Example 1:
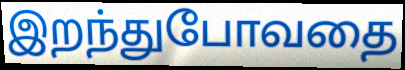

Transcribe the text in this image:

இறந்துபோவதை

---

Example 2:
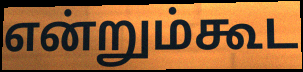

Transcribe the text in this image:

என்றும்கூட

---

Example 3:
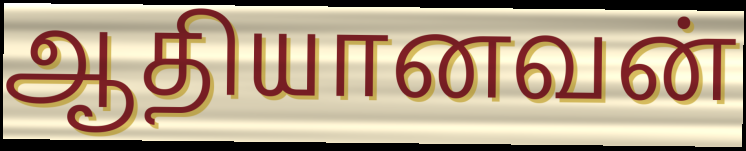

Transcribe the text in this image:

ஆதியானவன்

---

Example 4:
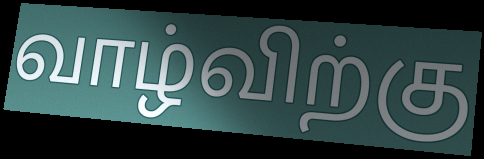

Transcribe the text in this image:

வாழ்விற்கு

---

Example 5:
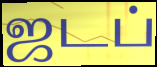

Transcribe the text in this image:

ஜடப்